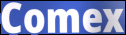
Comex